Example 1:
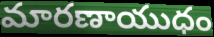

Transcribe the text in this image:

మారణాయుధం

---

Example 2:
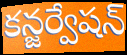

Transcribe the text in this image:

కన్జర్వేషన్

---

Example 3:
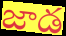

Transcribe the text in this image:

జాడ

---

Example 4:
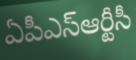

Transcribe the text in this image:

ఏపీఎస్ఆర్టీసీ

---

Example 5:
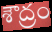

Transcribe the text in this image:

శౌద్రం